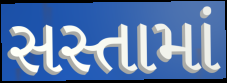
સસ્તામાં